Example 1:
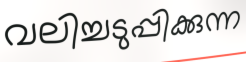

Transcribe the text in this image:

വലിച്ചടുപ്പിക്കുന്ന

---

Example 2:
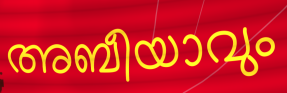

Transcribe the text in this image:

അബീയാവും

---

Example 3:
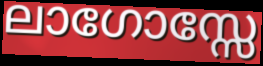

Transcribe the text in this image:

ലാഗോസ്സേ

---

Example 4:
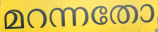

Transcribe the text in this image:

മറന്നതോ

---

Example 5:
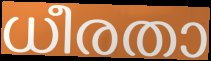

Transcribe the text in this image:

ധീരതാ